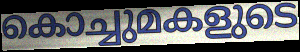
കൊച്ചുമകളുടെ